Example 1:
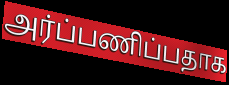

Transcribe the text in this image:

அர்ப்பணிப்பதாக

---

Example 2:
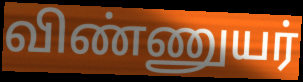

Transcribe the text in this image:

விண்ணுயர்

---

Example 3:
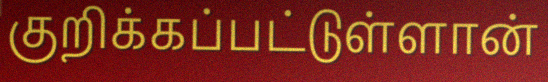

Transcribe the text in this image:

குறிக்கப்பட்டுள்ளான்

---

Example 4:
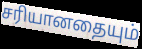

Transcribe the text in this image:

சரியானதையும்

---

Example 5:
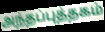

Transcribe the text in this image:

அந்தப்புத்தகம்